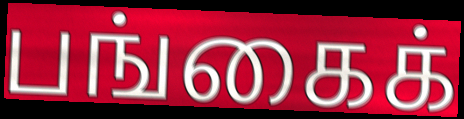
பங்கைக்